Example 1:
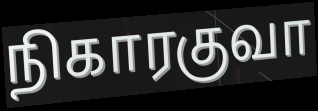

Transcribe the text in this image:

நிகாரகுவா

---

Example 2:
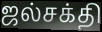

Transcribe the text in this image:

ஜல்சக்தி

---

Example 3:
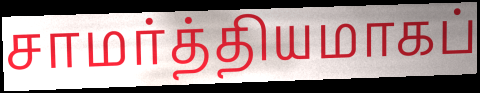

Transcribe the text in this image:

சாமர்த்தியமாகப்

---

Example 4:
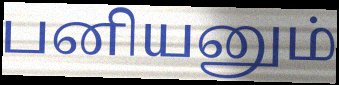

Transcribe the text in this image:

பனியனும்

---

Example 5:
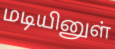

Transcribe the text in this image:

மடியினுள்